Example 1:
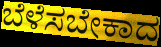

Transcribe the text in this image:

ಬೆಳೆಸಬೇಕಾದ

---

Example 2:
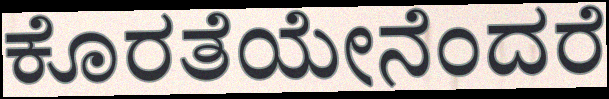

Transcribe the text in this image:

ಕೊರತೆಯೇನೆಂದರೆ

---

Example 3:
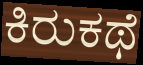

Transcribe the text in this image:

ಕಿರುಕಥೆ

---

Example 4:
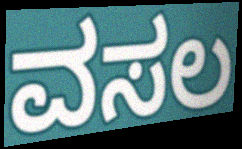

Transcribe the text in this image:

ವಸಲ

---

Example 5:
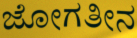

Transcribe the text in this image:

ಜೋಗತೀನ